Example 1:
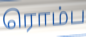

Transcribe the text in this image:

ரொம்ப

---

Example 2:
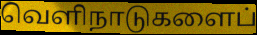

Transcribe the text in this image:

வெளிநாடுகளைப்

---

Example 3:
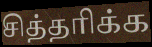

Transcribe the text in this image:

சித்தரிக்க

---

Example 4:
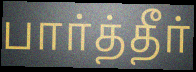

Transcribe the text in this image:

பார்த்தீர்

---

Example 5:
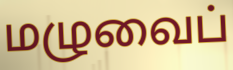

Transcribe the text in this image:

மழுவைப்